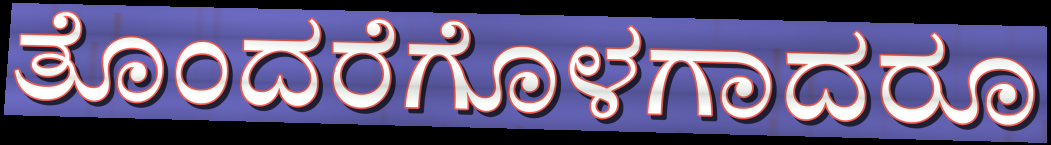
ತೊಂದರೆಗೊಳಗಾದರೂ